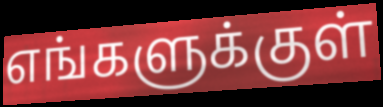
எங்களுக்குள்